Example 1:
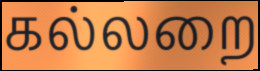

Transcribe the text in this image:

கல்லறை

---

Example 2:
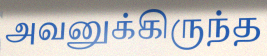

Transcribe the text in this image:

அவனுக்கிருந்த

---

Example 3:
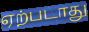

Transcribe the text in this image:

ஏற்படாது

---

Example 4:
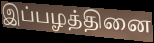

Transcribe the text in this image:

இப்பழத்தினை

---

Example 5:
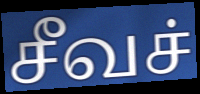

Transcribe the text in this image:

சீவச்